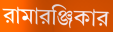
রামারঞ্জিকার